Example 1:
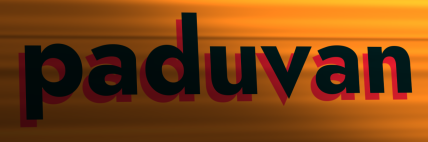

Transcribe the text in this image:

paduvan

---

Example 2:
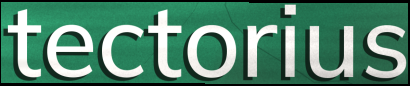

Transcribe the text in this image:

tectorius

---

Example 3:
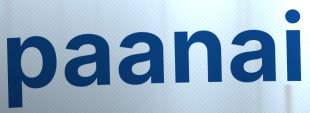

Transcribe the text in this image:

paanai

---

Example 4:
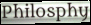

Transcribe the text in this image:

Philosphy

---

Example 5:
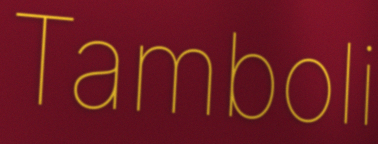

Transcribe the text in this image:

Tamboli